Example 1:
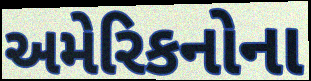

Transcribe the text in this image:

અમેરિકનોના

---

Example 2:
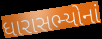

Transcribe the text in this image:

ધારાસભ્યોનાં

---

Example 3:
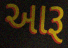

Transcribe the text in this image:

આરૂ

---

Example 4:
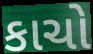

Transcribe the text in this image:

કાચો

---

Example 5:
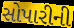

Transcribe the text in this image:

સોપારીની